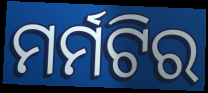
ମର୍ମଟିର